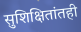
सुशिक्षितांतही